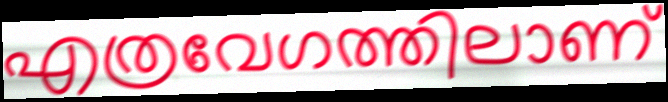
എത്രവേഗത്തിലാണ്